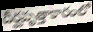
దీర్ఘవృత్తాకారంలో